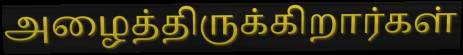
அழைத்திருக்கிறார்கள்